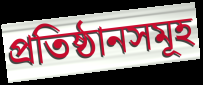
প্ৰতিষ্ঠানসমূহ